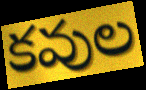
కవుల